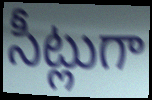
సీట్లుగా